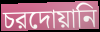
চরদোয়ানি